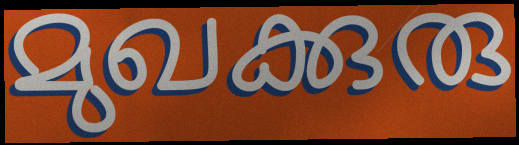
മുഖക്കുരു